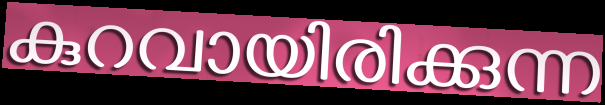
കുറവായിരിക്കുന്ന